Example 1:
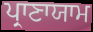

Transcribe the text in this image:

ਪ੍ਰਾਣਾਯਾਮ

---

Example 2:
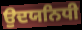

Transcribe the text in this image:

ਉਦਯਨਿਧੀ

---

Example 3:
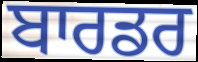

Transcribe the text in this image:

ਬਾਰਡਰ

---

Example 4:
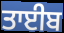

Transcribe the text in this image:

ਤਾਈਬ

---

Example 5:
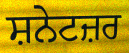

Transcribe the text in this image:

ਸ਼ਨੇਟਜ਼ਰ